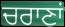
ਚਰਾਣਾਂ